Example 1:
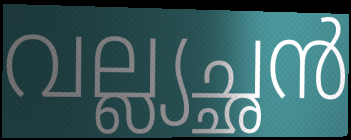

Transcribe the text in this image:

വല്ല്യച്ഛൻ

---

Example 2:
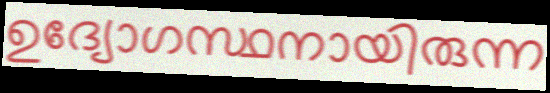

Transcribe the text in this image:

ഉദ്യോഗസ്ഥനായിരുന്ന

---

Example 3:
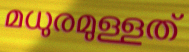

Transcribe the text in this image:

മധുരമുള്ളത്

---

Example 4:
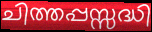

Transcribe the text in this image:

ചിത്തപ്പസ്സദ്ധി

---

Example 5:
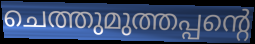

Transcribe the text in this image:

ചെത്തുമുത്തപ്പന്റെ